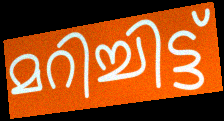
മറിച്ചിട്ട്